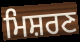
ਮਿਸ਼ਰਣ